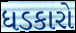
ધડકારો